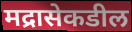
मद्रासेकडील